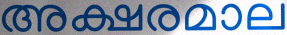
അക്ഷരമാല